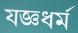
যজ্ঞধর্ম